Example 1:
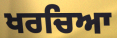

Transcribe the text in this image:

ਖਰਚਿਆ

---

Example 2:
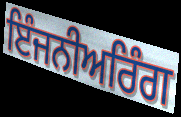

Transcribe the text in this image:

ਇੰਜਨੀਅਰਿੰਗ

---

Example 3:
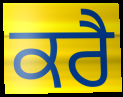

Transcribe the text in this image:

ਕਰੈ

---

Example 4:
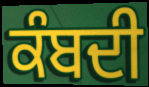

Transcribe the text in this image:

ਕੰਬਦੀ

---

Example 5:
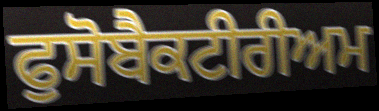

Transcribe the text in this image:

ਫੁਸੋਬੈਕਟੀਰੀਅਮ